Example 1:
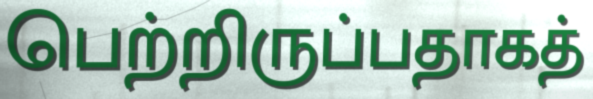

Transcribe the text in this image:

பெற்றிருப்பதாகத்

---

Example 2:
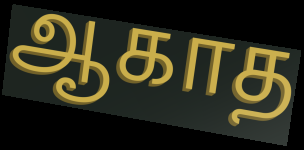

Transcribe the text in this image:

ஆகாத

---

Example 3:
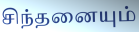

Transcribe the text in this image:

சிந்தனையும்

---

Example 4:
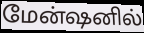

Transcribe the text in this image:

மேன்ஷனில்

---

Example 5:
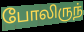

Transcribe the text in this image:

போலிருந்